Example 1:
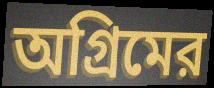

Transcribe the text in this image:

অগ্রিমের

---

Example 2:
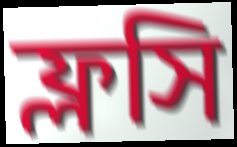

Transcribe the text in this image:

ফ্লসি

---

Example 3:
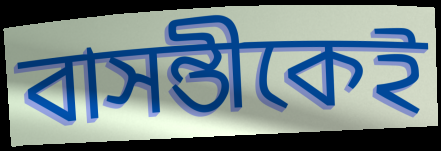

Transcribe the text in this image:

বাসন্তীকেই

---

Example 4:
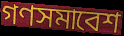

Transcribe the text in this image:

গণসমাবেশ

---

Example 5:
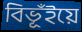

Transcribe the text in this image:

বিভূঁইয়ে